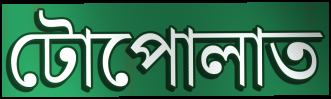
টোপোলাত